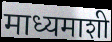
माध्यमाशी